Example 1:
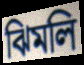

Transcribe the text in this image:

ঝিমলি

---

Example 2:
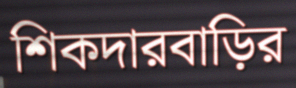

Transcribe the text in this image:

শিকদারবাড়ির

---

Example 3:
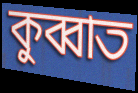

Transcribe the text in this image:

কুব্বাত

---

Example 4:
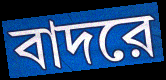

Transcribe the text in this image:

বাদরে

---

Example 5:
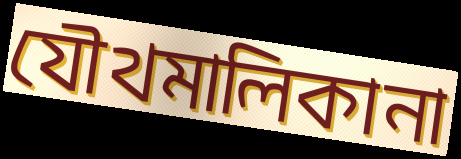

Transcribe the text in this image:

যৌথমালিকানা